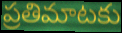
ప్రతిమాటకు